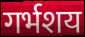
गर्भशय